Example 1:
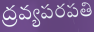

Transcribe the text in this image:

ద్రవ్యపరపతి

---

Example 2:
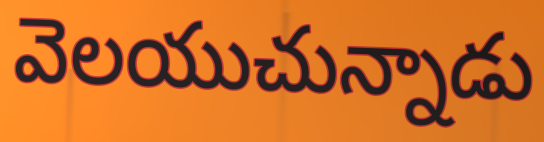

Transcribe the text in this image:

వెలయుచున్నాడు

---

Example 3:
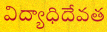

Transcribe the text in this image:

విద్యాధిదేవత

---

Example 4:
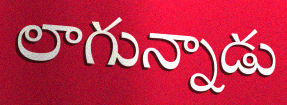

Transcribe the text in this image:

లాగున్నాడు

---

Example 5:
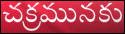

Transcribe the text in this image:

చక్రమునకు